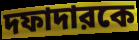
দফাদারকে